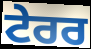
ਟੇਰਰ